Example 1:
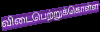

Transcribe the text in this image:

விடைபெற்றுக்கொள்ள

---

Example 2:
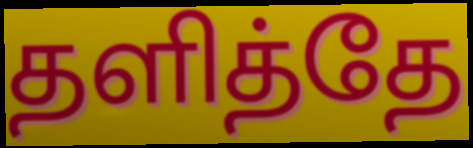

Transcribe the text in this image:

தளித்தே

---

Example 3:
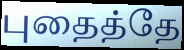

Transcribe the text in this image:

புதைத்தே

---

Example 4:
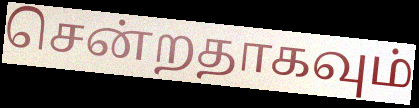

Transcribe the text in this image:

சென்றதாகவும்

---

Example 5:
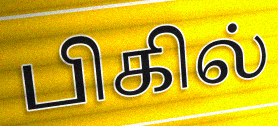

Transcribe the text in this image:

பிகில்